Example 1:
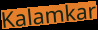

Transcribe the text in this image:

Kalamkar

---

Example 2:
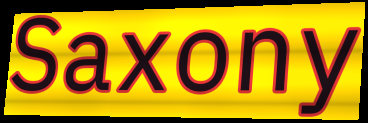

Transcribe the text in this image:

Saxony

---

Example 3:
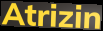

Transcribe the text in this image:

Atrizin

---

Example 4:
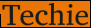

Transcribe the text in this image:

Techie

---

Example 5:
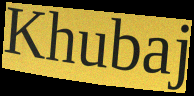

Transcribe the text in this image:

Khubaj